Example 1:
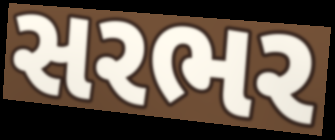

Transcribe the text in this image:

સરભર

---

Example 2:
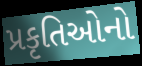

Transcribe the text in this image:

પ્રકૃતિઓનો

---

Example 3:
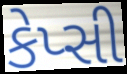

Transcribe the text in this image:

કેપ્સી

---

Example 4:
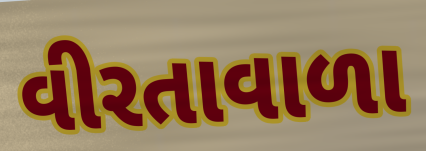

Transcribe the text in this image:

વીરતાવાળા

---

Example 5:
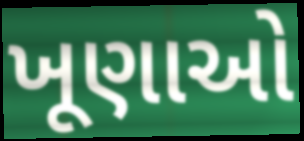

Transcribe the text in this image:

ખૂણાઓ